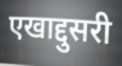
एखाद्दुसरी